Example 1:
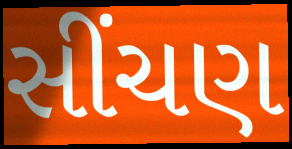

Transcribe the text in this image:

સીંચણ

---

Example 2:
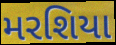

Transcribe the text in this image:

મરશિયા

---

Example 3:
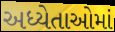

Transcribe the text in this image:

અધ્યેતાઓમાં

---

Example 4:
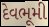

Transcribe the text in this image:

દેવભૂમી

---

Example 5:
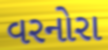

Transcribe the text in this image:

વરનોરા